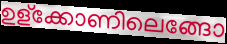
ഉള്ക്കോണിലെങ്ങോ